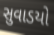
સુવાડયો